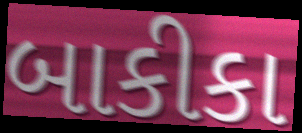
બાકીકા